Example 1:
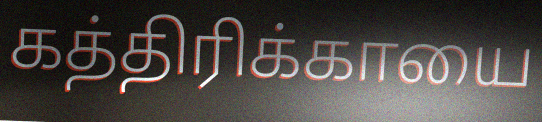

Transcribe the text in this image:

கத்திரிக்காயை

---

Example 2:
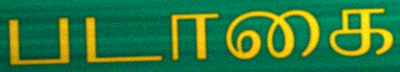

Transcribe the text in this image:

படாகை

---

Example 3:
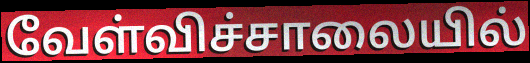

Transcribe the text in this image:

வேள்விச்சாலையில்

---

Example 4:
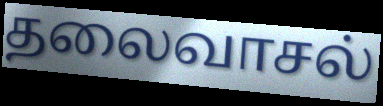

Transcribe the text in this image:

தலைவாசல்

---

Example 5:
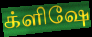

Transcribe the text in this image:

க்ளிஷே